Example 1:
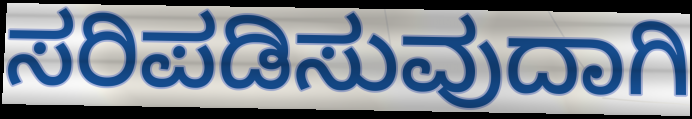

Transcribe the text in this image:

ಸರಿಪಡಿಸುವುದಾಗಿ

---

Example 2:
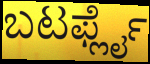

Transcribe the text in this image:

ಬಟರ್ಫ್ಲೈ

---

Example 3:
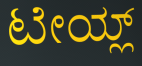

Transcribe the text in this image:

ಟೇಯ್ಲ್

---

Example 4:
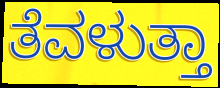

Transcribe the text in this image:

ತೆವಳುತ್ತಾ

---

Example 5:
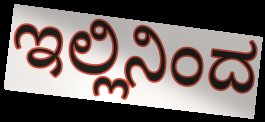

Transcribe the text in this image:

ಇಲ್ಲಿನಿಂದ